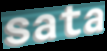
sata